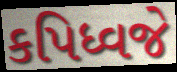
કપિધ્વજે